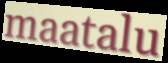
maatalu